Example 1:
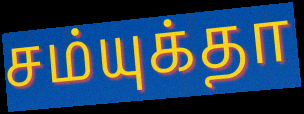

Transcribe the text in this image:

சம்யுக்தா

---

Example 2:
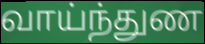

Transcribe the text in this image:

வாய்ந்துண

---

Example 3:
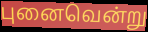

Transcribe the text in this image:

புனைவென்று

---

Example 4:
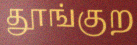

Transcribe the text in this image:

தூங்குற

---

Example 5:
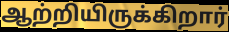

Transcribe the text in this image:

ஆற்றியிருக்கிறார்